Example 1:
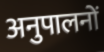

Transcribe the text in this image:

अनुपालनों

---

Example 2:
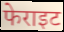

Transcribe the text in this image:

फेराइट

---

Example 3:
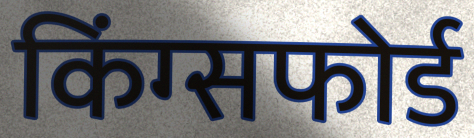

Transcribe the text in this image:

किंग्सफोर्ड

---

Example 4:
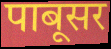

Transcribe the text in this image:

पाबूसर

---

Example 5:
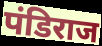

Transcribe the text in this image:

पंडिराज